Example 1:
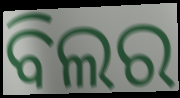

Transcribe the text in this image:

ବିଲର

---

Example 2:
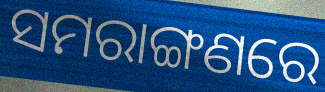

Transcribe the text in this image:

ସମରାଙ୍ଗଣରେ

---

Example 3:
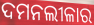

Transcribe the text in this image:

ଦମନଲୀଳାର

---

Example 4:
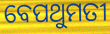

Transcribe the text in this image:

ବେପଥୁମତୀ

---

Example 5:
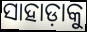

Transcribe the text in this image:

ସାହାଡ଼ାକୁ